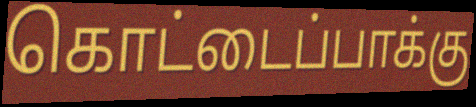
கொட்டைப்பாக்கு